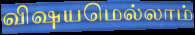
விஷயமெல்லாம்